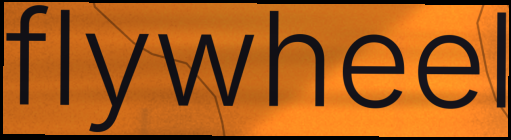
flywheel